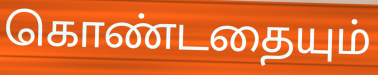
கொண்டதையும்